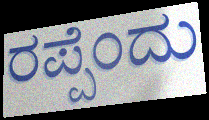
ರಪ್ಪೆಂದು